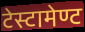
टेस्टामेण्ट